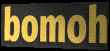
bomoh